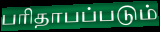
பரிதாபப்படும்